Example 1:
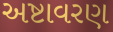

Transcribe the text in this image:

અષ્ટાવરણ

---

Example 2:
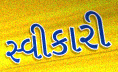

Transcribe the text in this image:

સ્વીકારી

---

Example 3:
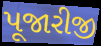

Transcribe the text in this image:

પૂજારીજી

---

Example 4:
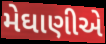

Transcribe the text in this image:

મેઘાણીએ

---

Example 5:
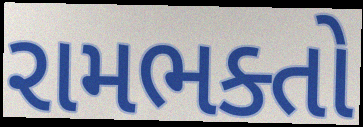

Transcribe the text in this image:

રામભક્તો